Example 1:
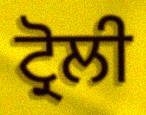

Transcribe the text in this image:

ਟ੍ਰੋਲੀ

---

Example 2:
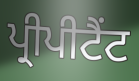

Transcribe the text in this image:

ਪ੍ਰੀਪੀਟੈਂਟ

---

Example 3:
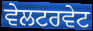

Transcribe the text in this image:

ਵੇਲਟਰਵੇਟ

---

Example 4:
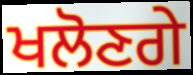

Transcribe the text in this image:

ਖਲੋਣਗੇ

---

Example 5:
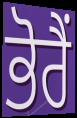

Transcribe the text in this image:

ਭੋਰੈਂ